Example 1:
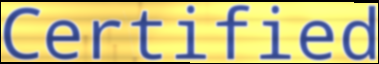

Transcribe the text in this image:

Certified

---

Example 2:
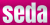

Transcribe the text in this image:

seda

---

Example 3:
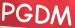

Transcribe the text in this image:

PGDM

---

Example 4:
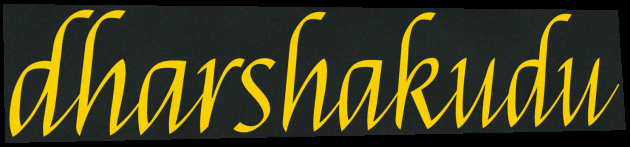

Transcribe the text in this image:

dharshakudu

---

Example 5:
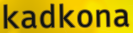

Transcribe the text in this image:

kadkona